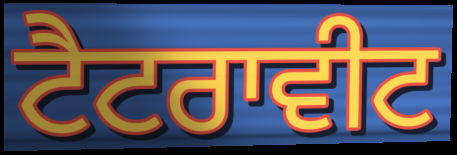
ਟੈਟਰਾਵੀਟ